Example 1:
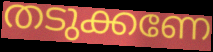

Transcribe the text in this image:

തടുക്കണേ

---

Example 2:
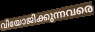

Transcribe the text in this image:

വിയോജിക്കുന്നവരെ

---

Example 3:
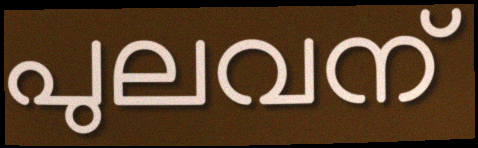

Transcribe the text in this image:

പുലവന്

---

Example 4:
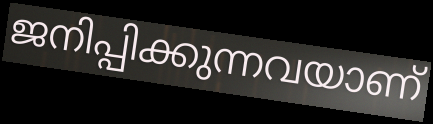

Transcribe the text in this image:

ജനിപ്പിക്കുന്നവയാണ്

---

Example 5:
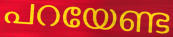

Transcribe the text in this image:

പറയേണ്ട